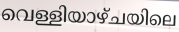
വെള്ളിയാഴ്ചയിലെ